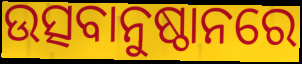
ଉତ୍ସବାନୁଷ୍ଠାନରେ